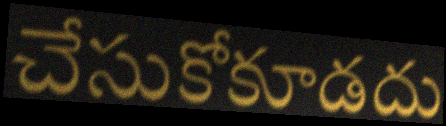
చేసుకోకూడదు